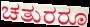
ಚತುರರೂ